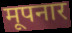
मूपनार